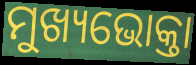
ମୁଖ୍ୟଭୋକ୍ତା